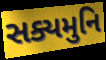
સક્યમુનિ